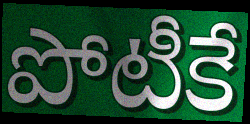
పోటీకే